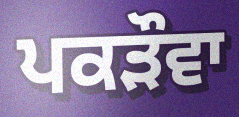
ਪਕੜੌਵਾ